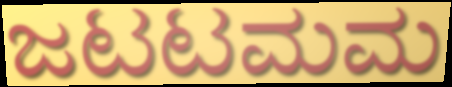
ಜಟಟಮಮ